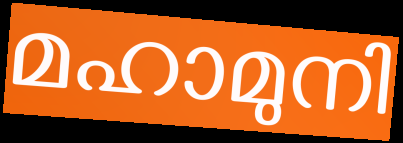
മഹാമുനി